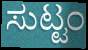
ಸುಟ್ಟಂ